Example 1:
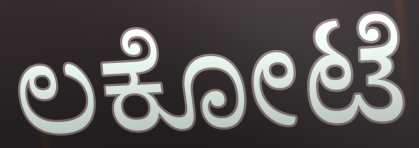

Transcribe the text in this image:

ಲಕೋಟೆ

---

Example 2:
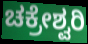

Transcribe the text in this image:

ಚಕ್ರೇಶ್ವರಿ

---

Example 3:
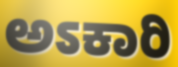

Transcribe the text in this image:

ಅಽಕಾರಿ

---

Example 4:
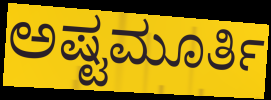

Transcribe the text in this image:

ಅಷ್ಟಮೂರ್ತಿ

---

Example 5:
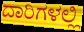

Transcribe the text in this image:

ದಾರಿಗಳಲ್ಲಿ